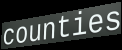
counties